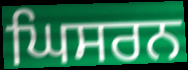
ਘਿਸਰਨ